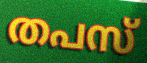
തപസ്